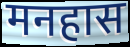
मनहास